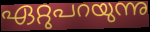
ഏറ്റുപറയുന്നു